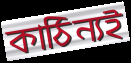
কাঠিন্যই